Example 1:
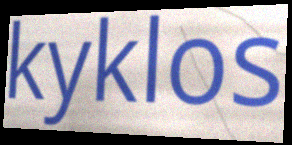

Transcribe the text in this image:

kyklos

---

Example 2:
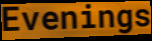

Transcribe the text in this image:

Evenings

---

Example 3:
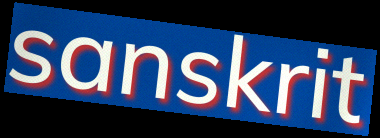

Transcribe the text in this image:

sanskrit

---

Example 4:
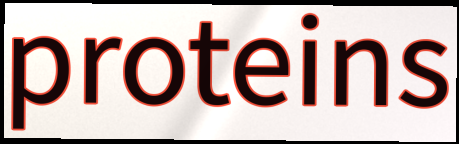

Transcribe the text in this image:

proteins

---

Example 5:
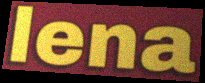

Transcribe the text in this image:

lena